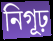
নিগূঢ়